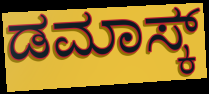
ಡಮಾಸ್ಕ್